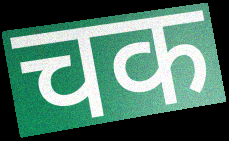
चक